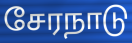
சேரநாடு